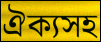
ঐক্যসহ